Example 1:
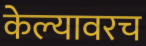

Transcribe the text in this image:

केल्यावरच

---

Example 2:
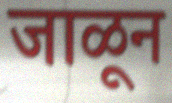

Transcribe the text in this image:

जाळून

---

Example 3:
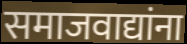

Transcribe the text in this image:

समाजवाद्यांना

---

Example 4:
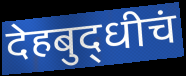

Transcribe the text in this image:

देहबुद्धीचं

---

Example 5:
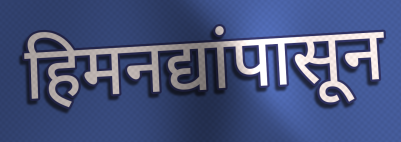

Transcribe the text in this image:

हिमनद्यांपासून